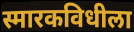
स्मारकविधीला